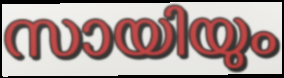
സായിയും